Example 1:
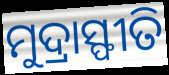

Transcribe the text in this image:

ମୁଦ୍ରାସ୍ଫୀତି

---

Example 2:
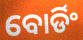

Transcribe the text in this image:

ବୋର୍ଡିଂ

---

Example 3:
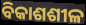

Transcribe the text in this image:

ବିକାଶଶୀଳ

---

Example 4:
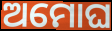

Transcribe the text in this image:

ଅମୋଘ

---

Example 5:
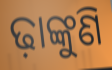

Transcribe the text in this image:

ଢ଼ାଙ୍କୁଣି